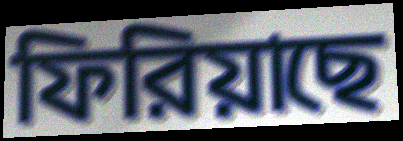
ফিরিয়াছে